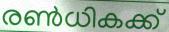
രൺധികക്ക്